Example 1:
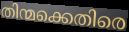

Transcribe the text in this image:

തിന്മക്കെതിരെ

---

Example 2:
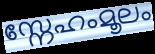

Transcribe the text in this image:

സ്നേഹംമൂലം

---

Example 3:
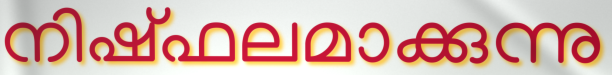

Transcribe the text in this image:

നിഷ്ഫലമാക്കുന്നു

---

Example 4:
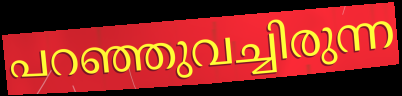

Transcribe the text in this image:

പറഞ്ഞുവച്ചിരുന്ന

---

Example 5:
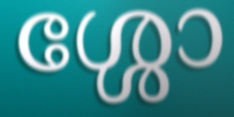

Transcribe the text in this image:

ശ്ശോ